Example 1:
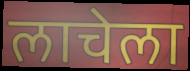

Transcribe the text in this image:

लाचेला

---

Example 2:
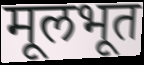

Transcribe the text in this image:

मूलभूत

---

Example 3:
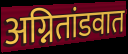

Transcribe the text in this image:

अग्नितांडवात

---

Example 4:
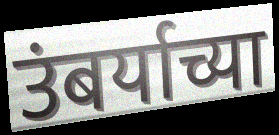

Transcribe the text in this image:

उंबर्याच्या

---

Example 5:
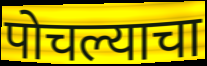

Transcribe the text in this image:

पोचल्याचा